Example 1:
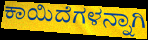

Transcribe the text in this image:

ಕಾಯಿದೆಗಳನ್ನಾಗಿ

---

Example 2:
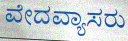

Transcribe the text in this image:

ವೇದವ್ಯಾಸರು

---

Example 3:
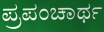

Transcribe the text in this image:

ಪ್ರಪಂಚಾರ್ಥ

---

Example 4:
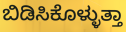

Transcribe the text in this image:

ಬಿಡಿಸಿಕೊಳ್ಳುತ್ತಾ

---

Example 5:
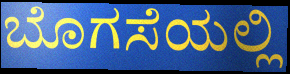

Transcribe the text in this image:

ಬೊಗಸೆಯಲ್ಲಿ